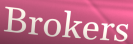
Brokers